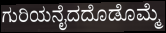
ಗುರಿಯನೈದದೊಡೊಮ್ಮೆ